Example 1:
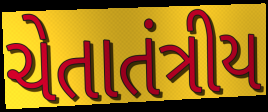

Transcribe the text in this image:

ચેતાતંત્રીય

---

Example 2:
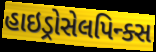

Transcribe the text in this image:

હાઇડ્રોસેલપિન્ક્સ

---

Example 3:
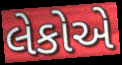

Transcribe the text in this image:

લેકોએ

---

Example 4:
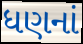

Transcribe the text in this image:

ધણનાં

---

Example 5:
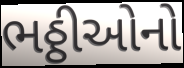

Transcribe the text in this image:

ભઠ્ઠીઓનો